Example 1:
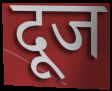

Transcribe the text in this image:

दूज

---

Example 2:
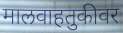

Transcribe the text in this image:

मालवाहतुकीवर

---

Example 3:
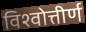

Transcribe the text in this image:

विश्वोत्तीर्ण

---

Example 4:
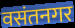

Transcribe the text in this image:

वसंतनगर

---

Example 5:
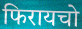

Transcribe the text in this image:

फिरायचो